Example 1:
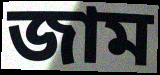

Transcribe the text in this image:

জাম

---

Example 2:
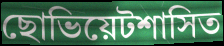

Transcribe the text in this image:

ছোভিয়েটশাসিত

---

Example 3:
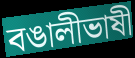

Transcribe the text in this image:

বঙালীভাষী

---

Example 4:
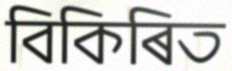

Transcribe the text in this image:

বিকিৰিত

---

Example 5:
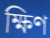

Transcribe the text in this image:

ক্ষিণ